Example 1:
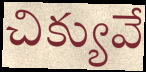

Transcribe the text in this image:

చిక్యువే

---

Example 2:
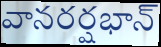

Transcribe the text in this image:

వానరర్షభాన్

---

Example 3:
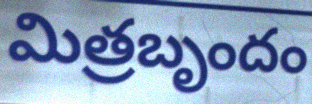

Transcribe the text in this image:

మిత్రబృందం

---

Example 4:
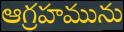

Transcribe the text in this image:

ఆగ్రహమును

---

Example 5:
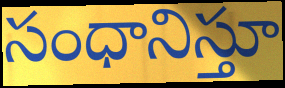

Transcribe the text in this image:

సంధానిస్తూ